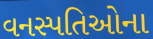
વનસ્પતિઓના